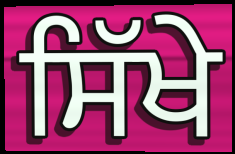
ਸਿੱਖੇ